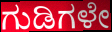
ಗುಡಿಗಳೇ